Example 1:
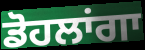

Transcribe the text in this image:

ਡੋਹਲਾਂਗਾ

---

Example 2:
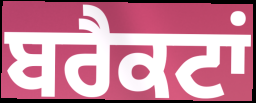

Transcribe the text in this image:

ਬਰੈਕਟਾਂ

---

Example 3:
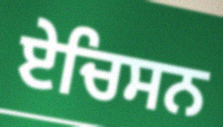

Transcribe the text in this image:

ਏਚਿਸਨ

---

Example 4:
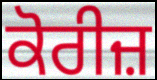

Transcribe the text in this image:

ਕੋਰੀਜ਼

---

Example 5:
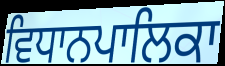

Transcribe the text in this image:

ਵਿਧਾਨਪਾਲਿਕਾ